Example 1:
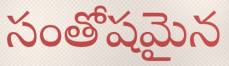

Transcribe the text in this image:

సంతోషమైన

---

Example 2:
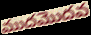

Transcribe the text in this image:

ముదమొదవ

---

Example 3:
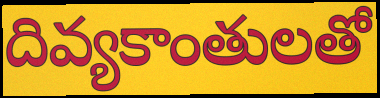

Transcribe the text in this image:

దివ్యకాంతులతో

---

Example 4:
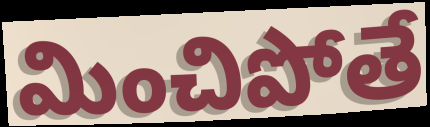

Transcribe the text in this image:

మించిపోతే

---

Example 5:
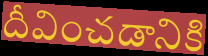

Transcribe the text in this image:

దీవించడానికి